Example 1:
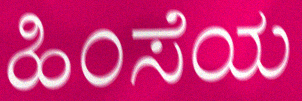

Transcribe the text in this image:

ಹಿಂಸೆಯ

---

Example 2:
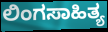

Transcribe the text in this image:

ಲಿಂಗಸಾಹಿತ್ಯ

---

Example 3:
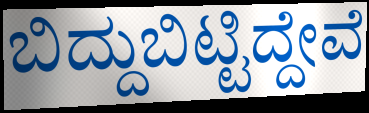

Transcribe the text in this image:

ಬಿದ್ದುಬಿಟ್ಟಿದ್ದೇವೆ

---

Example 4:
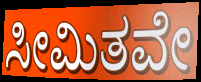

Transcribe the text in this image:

ಸೀಮಿತವೇ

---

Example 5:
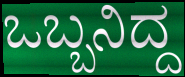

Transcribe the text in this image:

ಒಬ್ಬನಿದ್ದ